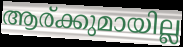
ആര്ക്കുമായില്ല